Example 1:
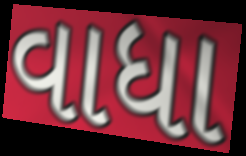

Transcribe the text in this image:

વાધા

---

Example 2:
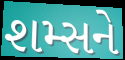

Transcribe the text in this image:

શમ્સને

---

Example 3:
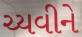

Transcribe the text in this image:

ચ્યવીને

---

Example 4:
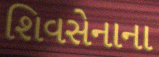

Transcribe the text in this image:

શિવસેનાના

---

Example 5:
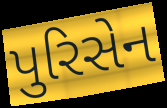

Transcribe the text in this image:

પુરિસેન